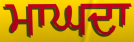
ਮਾਘਦਾ